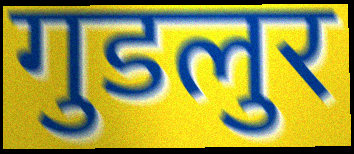
गुडलुर